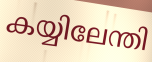
കയ്യിലേന്തി